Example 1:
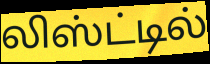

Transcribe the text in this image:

லிஸ்ட்டில்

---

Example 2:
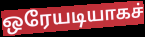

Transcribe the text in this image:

ஒரேயடியாகச்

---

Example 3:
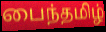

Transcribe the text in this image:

பைந்தமிழ்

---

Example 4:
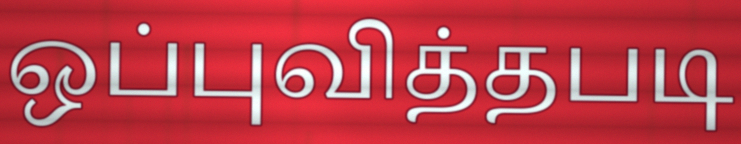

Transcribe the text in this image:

ஒப்புவித்தபடி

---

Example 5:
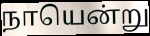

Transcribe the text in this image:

நாயென்று